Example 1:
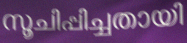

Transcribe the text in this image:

സൂചിപ്പിച്ചതായി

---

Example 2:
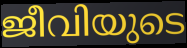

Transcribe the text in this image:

ജീവിയുടെ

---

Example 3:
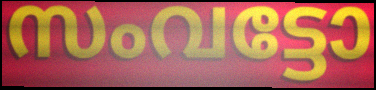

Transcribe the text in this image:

സംവട്ടോ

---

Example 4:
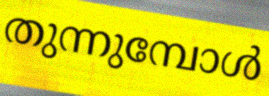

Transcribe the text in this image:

തുന്നുമ്പോൾ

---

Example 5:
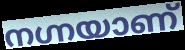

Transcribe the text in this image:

നഗ്നയാണ്